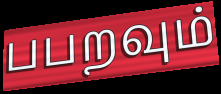
பபறவும்